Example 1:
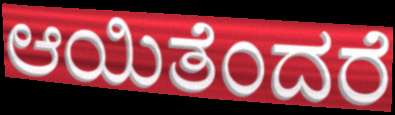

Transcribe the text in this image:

ಆಯಿತೆಂದರೆ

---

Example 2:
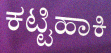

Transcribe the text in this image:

ಕಟ್ಟಿಹಾಕಿ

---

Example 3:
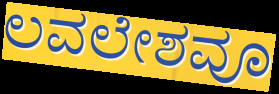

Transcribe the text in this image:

ಲವಲೇಶವೂ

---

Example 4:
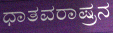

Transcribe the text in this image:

ಧಾತವರಾಷ್ರನ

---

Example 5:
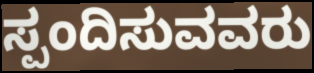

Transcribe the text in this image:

ಸ್ಪಂದಿಸುವವರು